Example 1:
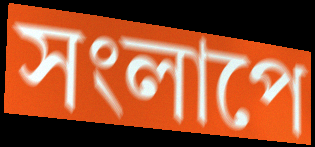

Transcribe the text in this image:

সংলাপে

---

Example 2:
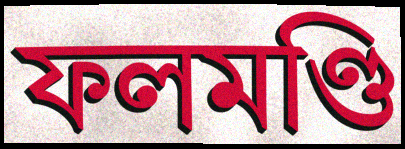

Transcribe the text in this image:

ফলমণ্ডি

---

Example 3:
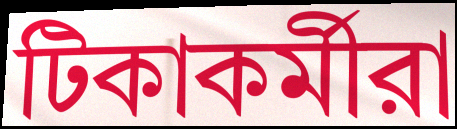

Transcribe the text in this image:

টিকাকর্মীরা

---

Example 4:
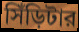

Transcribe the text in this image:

সিঁড়িটার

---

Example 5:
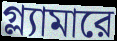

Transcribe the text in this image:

গ্ল্যামারে